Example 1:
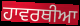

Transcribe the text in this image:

ਹਾਵਰਥੀਆ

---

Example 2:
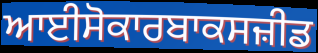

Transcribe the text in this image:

ਆਈਸੋਕਾਰਬਾਕਸਜ਼ੀਡ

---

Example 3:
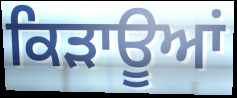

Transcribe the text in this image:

ਕਿੜਾਊਆਂ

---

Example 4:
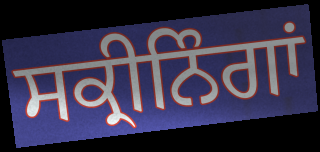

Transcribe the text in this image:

ਸਕ੍ਰੀਨਿੰਗਾਂ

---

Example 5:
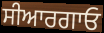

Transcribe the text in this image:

ਸੀਆਰਗਾਓ